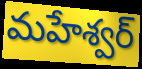
మహేశ్వర్